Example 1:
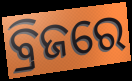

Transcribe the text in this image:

ବ୍ରିଜରେ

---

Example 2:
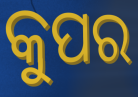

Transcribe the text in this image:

କୁପର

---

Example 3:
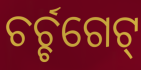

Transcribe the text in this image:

ଚର୍ଚ୍ଚଗେଟ୍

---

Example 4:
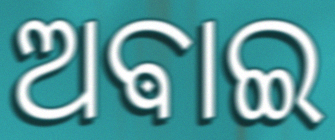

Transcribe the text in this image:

ଅଵାଇ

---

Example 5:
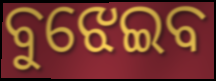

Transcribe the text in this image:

ବୁଝେଇବ